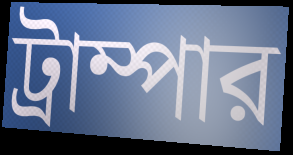
ট্রাম্পার